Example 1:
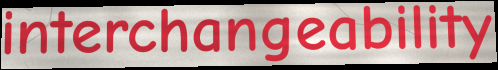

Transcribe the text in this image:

interchangeability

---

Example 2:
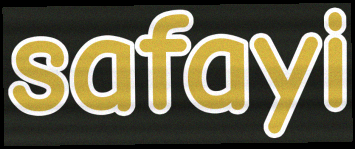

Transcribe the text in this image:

safayi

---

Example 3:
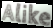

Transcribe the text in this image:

Alike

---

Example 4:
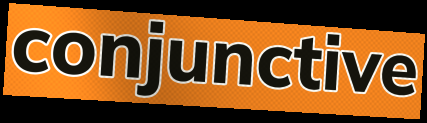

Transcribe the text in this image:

conjunctive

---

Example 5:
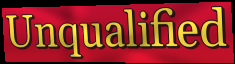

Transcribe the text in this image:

Unqualified